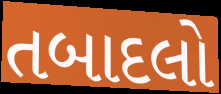
તબાદલો